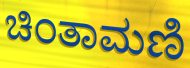
ಚಿಂತಾಮಣಿ